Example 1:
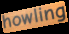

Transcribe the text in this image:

howling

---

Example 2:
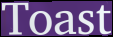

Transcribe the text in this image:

Toast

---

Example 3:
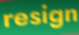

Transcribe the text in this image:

resign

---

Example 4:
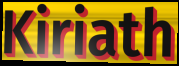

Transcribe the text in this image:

Kiriath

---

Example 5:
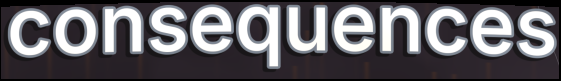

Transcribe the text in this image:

consequences